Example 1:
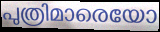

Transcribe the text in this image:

പുത്രിമാരെയോ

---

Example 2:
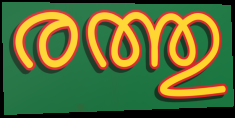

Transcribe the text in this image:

രത്തു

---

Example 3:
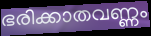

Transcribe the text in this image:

ഭരിക്കാതവണ്ണം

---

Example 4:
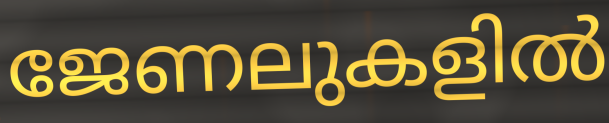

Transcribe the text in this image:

ജേണലുകളിൽ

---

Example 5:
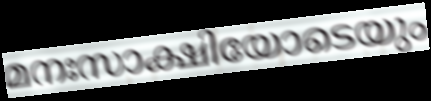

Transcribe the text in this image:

മനഃസാക്ഷിയോടെയും